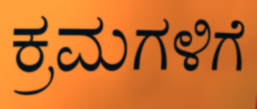
ಕ್ರಮಗಳಿಗೆ